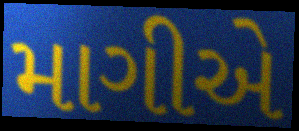
માગીએ